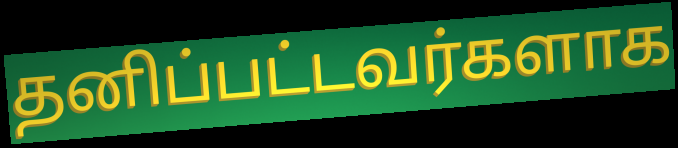
தனிப்பட்டவர்களாக